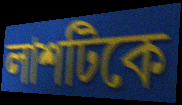
লাশটিকে